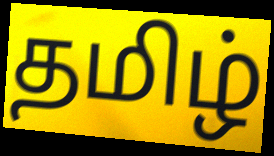
தமிழ்